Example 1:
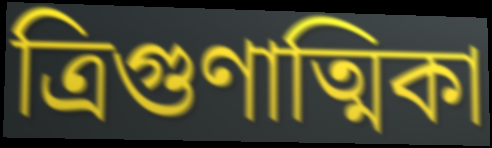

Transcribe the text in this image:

ত্রিগুণাত্মিকা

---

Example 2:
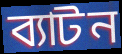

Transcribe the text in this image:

ব্যাটন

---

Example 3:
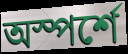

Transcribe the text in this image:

অস্পর্শে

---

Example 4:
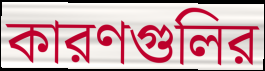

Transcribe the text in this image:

কারণগুলির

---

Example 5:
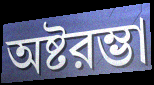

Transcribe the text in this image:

অষ্টরম্ভা